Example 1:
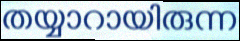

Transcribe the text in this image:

തയ്യാറായിരുന്ന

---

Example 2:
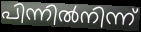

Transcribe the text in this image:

പിന്നിൽനിന്ന്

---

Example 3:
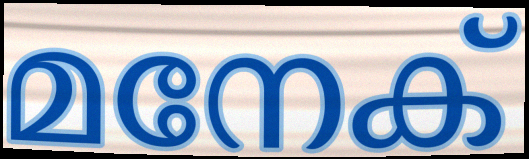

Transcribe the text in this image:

മനേക്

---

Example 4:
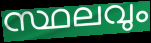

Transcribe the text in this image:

സ്ഥലവും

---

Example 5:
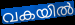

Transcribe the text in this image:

വകയിൽ